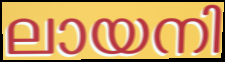
ലായനി